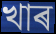
খাৰ